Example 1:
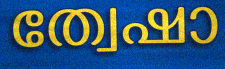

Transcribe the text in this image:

ത്വേഷാ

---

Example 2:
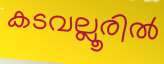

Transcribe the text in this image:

കടവല്ലൂരിൽ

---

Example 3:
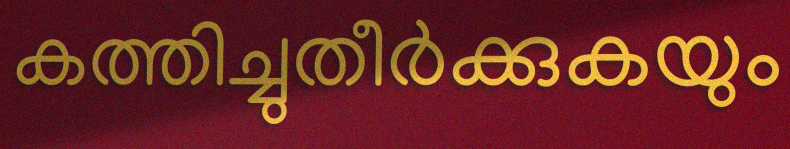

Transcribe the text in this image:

കത്തിച്ചുതീർക്കുകയും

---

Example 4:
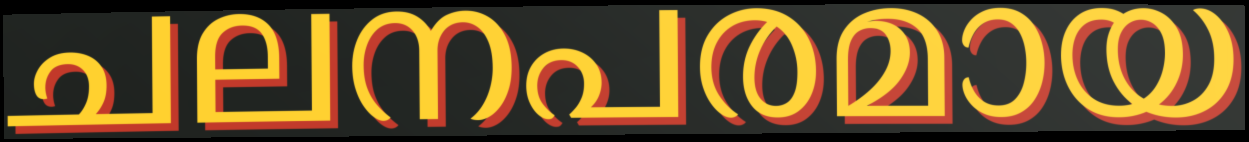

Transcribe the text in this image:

ചലനപരമായ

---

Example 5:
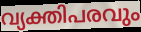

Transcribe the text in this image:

വ്യക്തിപരവും